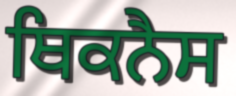
ਥਿਕਨੈਸ